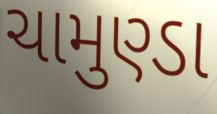
ચામુણ્ડા